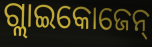
ଗ୍ଲାଇକୋଜେନ୍